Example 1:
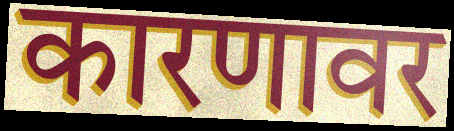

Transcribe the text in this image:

कारणावर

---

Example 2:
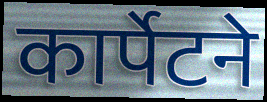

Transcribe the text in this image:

कार्पेटने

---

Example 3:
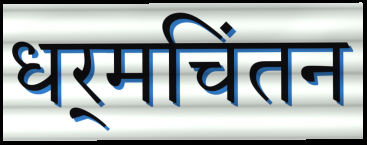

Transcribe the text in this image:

धर्मचिंतन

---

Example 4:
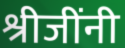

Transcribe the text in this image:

श्रीजींनी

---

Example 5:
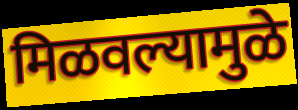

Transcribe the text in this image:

मिळवल्यामुळे